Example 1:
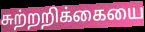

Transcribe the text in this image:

சுற்றறிக்கையை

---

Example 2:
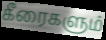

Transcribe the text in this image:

கீரைகளும்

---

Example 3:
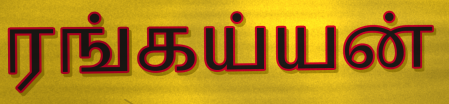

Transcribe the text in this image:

ரங்கய்யன்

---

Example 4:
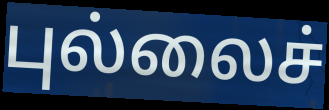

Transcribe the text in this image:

புல்லைச்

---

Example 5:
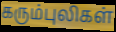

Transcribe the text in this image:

கரும்புலிகள்